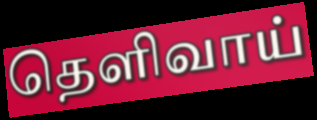
தெளிவாய்